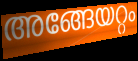
അങ്ങേയറ്റം